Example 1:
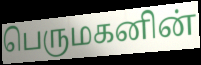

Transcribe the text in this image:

பெருமகனின்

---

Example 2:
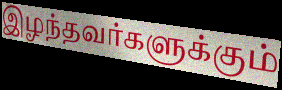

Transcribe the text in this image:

இழந்தவர்களுக்கும்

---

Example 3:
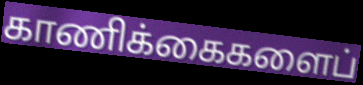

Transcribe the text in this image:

காணிக்கைகளைப்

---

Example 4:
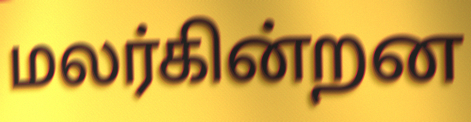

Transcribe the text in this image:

மலர்கின்றன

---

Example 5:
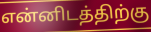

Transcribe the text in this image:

என்னிடத்திற்கு